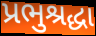
પ્રભુશ્રદ્ધા